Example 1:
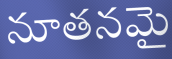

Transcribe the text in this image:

నూతనమై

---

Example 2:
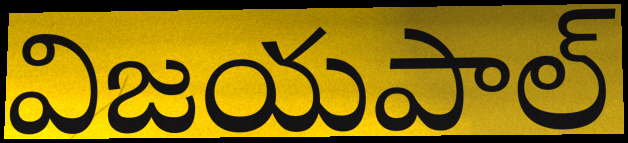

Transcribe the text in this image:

విజయపాల్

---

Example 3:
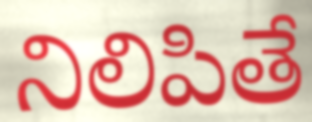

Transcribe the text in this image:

నిలిపితే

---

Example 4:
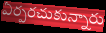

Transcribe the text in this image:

ఏర్పరచుకున్నారు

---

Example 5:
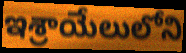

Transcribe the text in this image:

ఇశ్రాయేలులోని